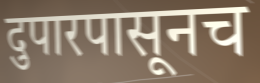
दुपारपासूनच